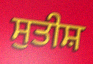
ਸੁਤੀਸ਼